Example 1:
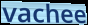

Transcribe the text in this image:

vachee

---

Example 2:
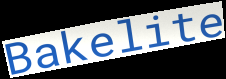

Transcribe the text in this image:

Bakelite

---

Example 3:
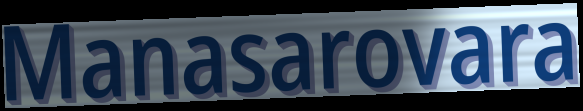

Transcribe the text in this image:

Manasarovara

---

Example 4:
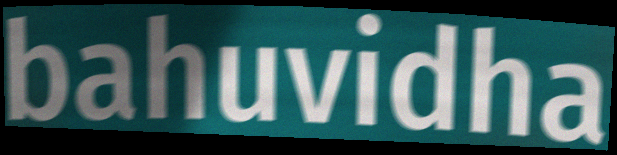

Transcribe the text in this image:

bahuvidha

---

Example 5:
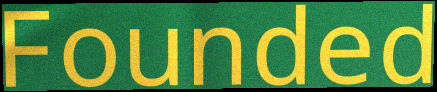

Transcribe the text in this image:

Founded